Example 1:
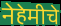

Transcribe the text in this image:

नेहेमीचे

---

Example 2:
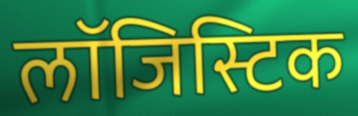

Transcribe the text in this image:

लॉजिस्टिक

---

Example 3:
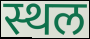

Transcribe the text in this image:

स्थल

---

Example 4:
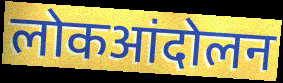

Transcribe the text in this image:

लोकआंदोलन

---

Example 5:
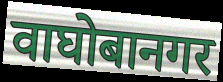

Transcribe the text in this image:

वाघोबानगर